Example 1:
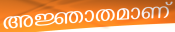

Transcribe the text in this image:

അജ്ഞാതമാണ്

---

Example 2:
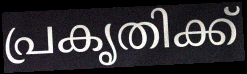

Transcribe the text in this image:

പ്രകൃതിക്ക്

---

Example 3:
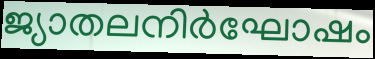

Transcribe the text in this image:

ജ്യാതലനിർഘോഷം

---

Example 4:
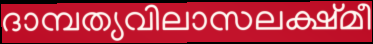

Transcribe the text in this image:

ദാമ്പത്യവിലാസലക്ഷ്മീ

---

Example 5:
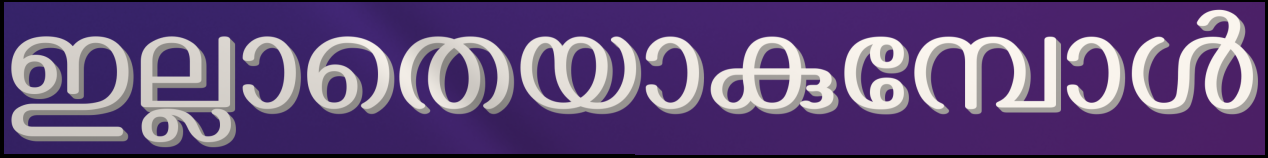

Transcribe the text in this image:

ഇല്ലാതെയാകുമ്പോൾ